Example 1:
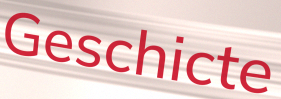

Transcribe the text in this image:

Geschicte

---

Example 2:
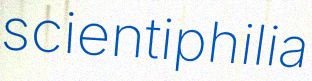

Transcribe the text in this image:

scientiphilia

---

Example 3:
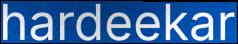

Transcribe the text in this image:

hardeekar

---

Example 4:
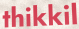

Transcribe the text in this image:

thikkil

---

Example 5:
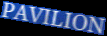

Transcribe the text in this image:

PAVILION